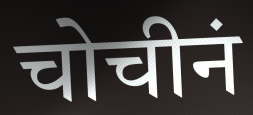
चोचीनं